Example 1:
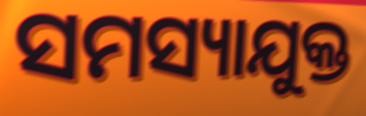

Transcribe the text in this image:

ସମସ୍ୟାଯୁକ୍ତ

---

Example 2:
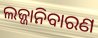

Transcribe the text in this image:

ଲଜ୍ଜାନିବାରଣ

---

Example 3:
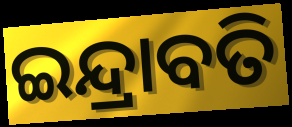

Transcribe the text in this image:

ଇନ୍ଦ୍ରାବତି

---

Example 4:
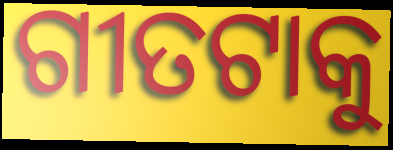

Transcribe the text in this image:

ଗୀତଟାକୁ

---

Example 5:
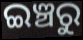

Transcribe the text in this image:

ଇଞ୍ଚରୁ